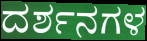
ದರ್ಶನಗಳ